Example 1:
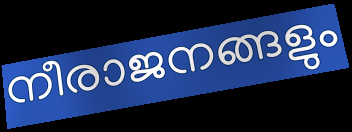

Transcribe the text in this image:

നീരാജനങ്ങളും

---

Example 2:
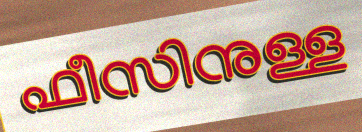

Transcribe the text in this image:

ഫീസിനുള്ള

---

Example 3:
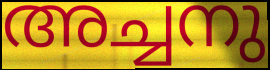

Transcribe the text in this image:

അച്ചനു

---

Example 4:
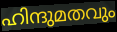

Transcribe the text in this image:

ഹിന്ദുമതവും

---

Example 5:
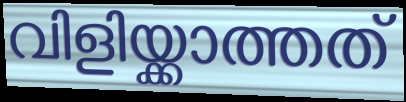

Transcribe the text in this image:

വിളിയ്ക്കാത്തത്